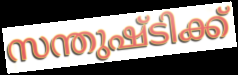
സന്തുഷ്ടിക്ക്